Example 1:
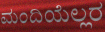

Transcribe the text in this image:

ಮಂದಿಯೆಲ್ಲರ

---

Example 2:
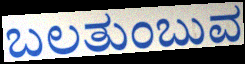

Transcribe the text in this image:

ಬಲತುಂಬುವ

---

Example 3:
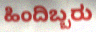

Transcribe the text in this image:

ಹಿಂದಿಬ್ಬರು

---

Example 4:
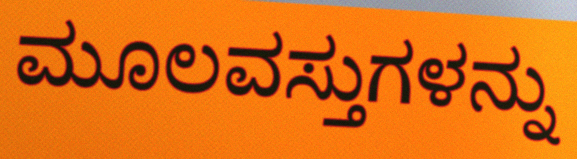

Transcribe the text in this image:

ಮೂಲವಸ್ತುಗಳನ್ನು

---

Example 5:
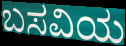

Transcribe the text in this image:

ಬಸವಿಯ